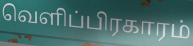
வெளிப்பிரகாரம்